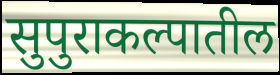
सुपुराकल्पातील